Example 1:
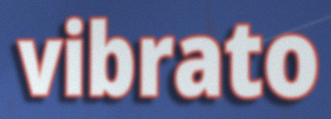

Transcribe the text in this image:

vibrato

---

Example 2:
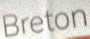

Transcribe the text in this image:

Breton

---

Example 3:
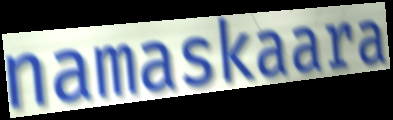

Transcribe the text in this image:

namaskaara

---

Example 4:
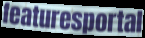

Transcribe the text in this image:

featuresportal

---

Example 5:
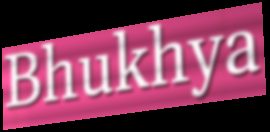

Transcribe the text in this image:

Bhukhya